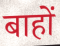
बाहों